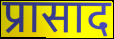
प्रासाद